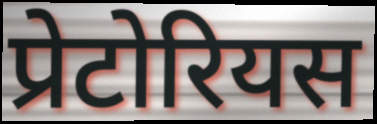
प्रेटोरियस